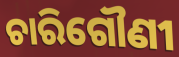
ଚାରିଗୌଣୀ